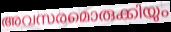
അവസരമൊരുക്കിയും